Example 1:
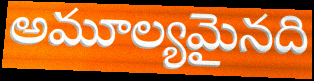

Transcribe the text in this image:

అమూల్యమైనది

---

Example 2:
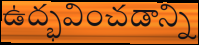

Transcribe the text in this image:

ఉద్భవించడాన్ని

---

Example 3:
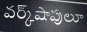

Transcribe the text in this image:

వర్క్‌షాపులూ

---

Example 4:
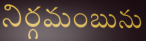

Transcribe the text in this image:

నిర్గమంబును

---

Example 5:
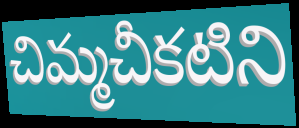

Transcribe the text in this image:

చిమ్మచీకటిని